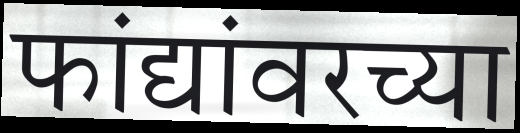
फांद्यांवरच्या